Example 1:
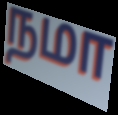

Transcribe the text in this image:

நமா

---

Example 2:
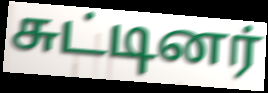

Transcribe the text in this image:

சுட்டினர்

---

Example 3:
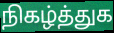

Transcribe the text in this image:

நிகழ்த்துக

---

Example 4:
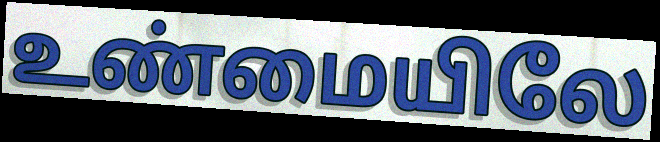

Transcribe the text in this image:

உண்மையிலே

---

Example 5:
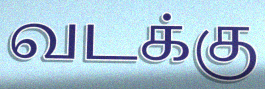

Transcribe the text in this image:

வடக்கு